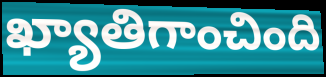
ఖ్యాతిగాంచింది